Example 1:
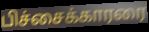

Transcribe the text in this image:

பிச்சைக்காரரை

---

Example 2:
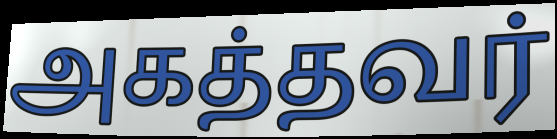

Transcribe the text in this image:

அகத்தவர்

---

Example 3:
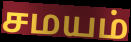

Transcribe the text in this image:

சமயம்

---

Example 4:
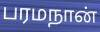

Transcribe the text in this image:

பரமநான்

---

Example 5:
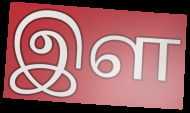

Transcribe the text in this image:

இள